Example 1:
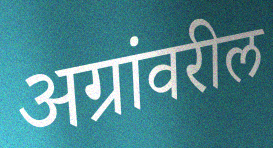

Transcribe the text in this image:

अग्रांवरील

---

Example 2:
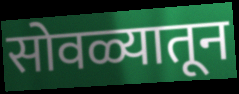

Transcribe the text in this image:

सोवळ्यातून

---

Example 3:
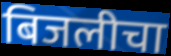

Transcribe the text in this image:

बिजलीचा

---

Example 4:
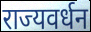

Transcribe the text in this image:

राज्यवर्धन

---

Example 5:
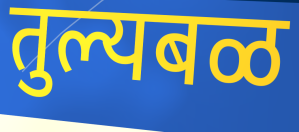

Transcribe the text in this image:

तुल्यबळ